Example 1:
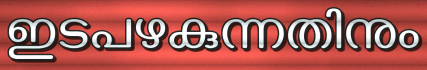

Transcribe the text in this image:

ഇടപഴകുന്നതിനും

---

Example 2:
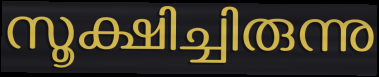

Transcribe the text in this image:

സൂക്ഷിച്ചിരുന്നു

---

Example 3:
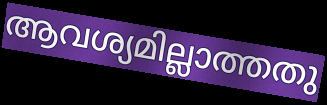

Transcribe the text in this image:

ആവശ്യമില്ലാത്തതു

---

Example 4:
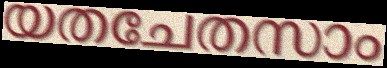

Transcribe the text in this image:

യതചേതസാം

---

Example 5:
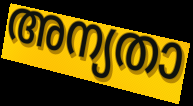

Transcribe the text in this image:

അന്യതാ